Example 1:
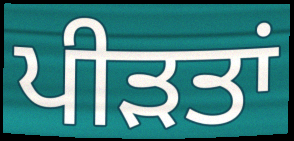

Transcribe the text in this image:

ਪੀਡ਼ਤਾਂ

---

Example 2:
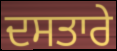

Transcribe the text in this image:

ਦਸਤਾਰੇ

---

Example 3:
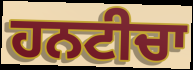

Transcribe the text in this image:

ਹਨਟੀਚਾ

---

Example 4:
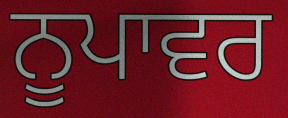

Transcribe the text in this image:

ਨੂਪਾਵਰ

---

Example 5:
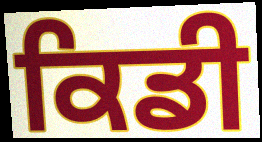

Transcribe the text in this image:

ਕਿਡੀ